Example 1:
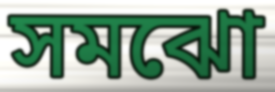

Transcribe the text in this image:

সমঝো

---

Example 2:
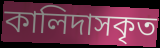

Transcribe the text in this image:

কালিদাসকৃত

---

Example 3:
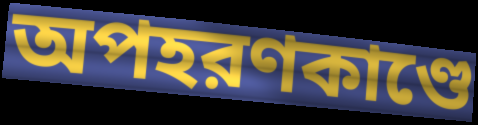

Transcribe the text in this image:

অপহরণকাণ্ডে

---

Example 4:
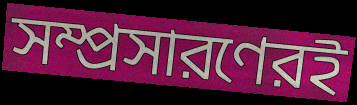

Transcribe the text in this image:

সম্প্রসারণেরই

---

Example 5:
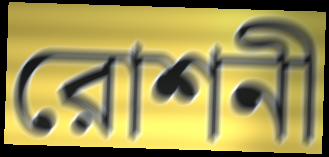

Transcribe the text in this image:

রোশনী